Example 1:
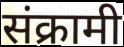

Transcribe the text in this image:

संक्रामी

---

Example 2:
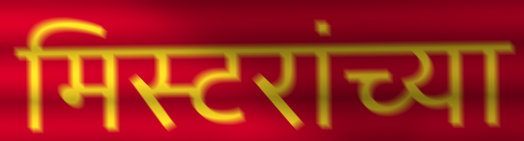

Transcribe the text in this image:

मिस्टरांच्या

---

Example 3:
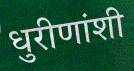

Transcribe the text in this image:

धुरीणांशी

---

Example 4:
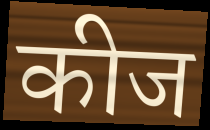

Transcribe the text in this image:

कीज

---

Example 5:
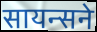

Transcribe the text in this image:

सायन्सने